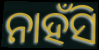
ନାହଁସି